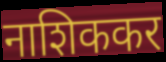
नाशिककर